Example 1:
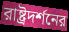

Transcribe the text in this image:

রাষ্ট্রদর্শনের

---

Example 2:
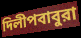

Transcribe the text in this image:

দিলীপবাবুরা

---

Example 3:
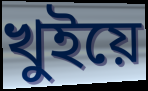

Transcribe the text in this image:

খুইয়ে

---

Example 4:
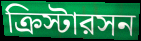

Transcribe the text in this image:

ক্রিস্টারসন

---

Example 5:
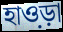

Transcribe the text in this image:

হাও়ড়া